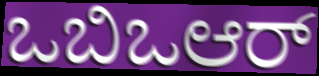
ಒಬಿಒಆರ್